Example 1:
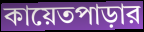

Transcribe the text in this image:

কায়েতপাড়ার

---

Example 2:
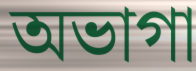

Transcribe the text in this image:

অভাগা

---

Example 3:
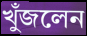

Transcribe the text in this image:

খুঁজলেন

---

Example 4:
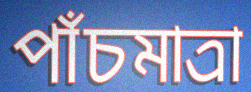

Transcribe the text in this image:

পাঁচমাত্রা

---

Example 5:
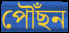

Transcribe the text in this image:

পৌঁছন